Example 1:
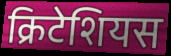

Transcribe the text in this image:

क्रिटेशियस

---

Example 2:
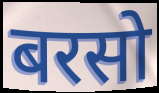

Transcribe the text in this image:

बरसो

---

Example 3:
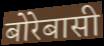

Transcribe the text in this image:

बोरेबासी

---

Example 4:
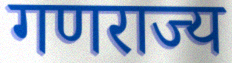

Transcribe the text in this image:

गणराज्य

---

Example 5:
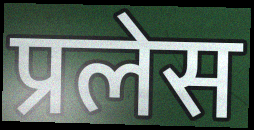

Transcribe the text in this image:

प्रलेस